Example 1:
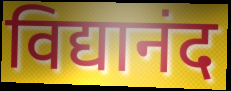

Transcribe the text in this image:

विद्यानंद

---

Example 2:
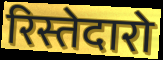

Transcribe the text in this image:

रिस्तेदारो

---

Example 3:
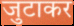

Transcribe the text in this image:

जुटाकर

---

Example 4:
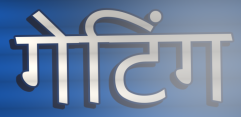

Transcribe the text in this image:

गेटिंग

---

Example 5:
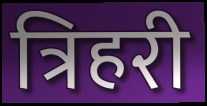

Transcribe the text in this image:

त्रिहरी